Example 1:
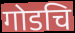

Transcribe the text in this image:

गोडचि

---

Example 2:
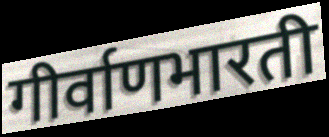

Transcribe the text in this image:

गीर्वाणभारती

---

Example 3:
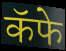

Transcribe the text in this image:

कॅफे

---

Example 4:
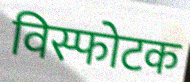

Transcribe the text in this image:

विस्फोटक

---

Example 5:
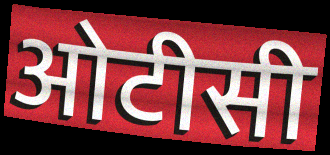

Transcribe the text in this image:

ओटीसी